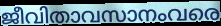
ജീവിതാവസാനംവരെ